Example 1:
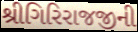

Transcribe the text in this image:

શ્રીગિરિરાજજીની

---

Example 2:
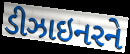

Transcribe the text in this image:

ડીઝાઇનરને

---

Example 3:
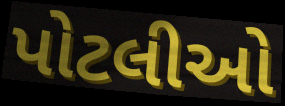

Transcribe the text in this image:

પોટલીઓ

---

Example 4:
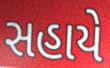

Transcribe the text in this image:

સહાયે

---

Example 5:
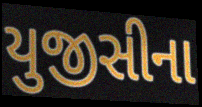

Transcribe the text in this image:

યુજીસીના